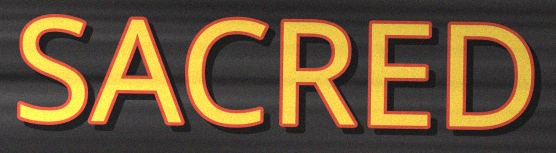
SACRED